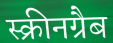
स्क्रीनग्रैब